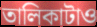
তালিকাটাও